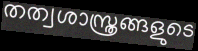
തത്വശാസ്ത്രങ്ങളുടെ